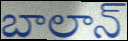
బాలాన్